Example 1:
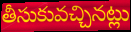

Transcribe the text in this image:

తీసుకువచ్చినట్లు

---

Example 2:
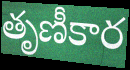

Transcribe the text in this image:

తృణీకార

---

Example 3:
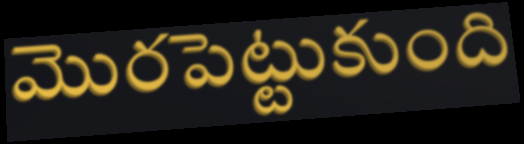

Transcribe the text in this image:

మొరపెట్టుకుంది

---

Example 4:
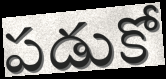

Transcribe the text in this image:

పడుకో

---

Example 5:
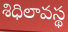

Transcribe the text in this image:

శిధిలావస్థ